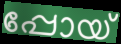
പ്പോയ്